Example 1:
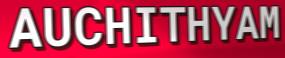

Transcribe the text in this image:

AUCHITHYAM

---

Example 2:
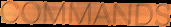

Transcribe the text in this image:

COMMANDS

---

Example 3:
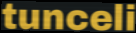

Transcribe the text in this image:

tunceli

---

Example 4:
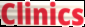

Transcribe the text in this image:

Clinics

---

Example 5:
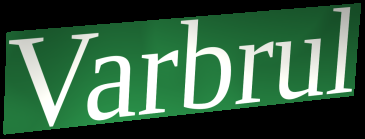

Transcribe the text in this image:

Varbrul